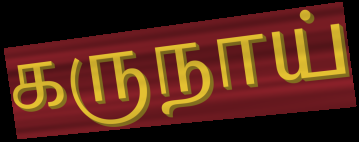
கருநாய்